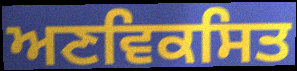
ਅਣਵਿਕਸਿਤ